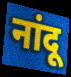
नांदू